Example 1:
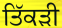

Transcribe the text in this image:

ਤਿੱਕੜੀ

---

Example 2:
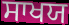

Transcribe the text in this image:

ਸਾਖਯ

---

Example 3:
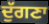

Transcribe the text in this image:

ਦੁੱਗਣਾ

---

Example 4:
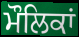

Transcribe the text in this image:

ਮੌਲਿਕਾਂ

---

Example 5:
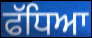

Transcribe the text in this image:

ਫੱਧਿਆ